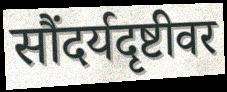
सौंदर्यदृष्टीवर